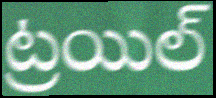
ట్రయిల్